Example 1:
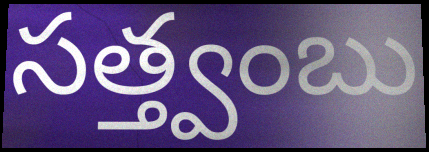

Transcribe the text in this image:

సత్త్వంబు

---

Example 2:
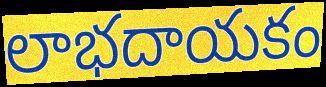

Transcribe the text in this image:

లాభదాయకం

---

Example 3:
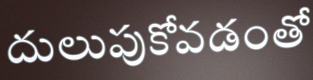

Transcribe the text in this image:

దులుపుకోవడంతో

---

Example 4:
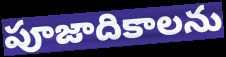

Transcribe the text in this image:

పూజాదికాలను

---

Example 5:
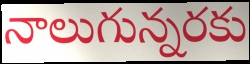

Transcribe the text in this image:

నాలుగున్నరకు